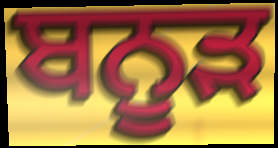
ਬਨੂੜ